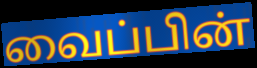
வைப்பின்